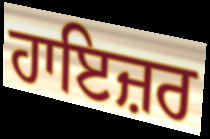
ਹਾਇਜ਼ਰ